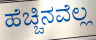
ಹೆಚ್ಚಿನವೆಲ್ಲ